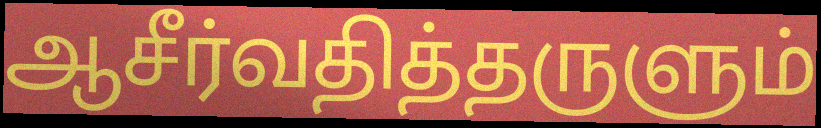
ஆசீர்வதித்தருளும்